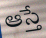
ఆస్తే